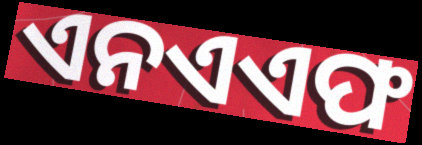
ଏନଏଏଫ